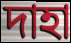
দাহা